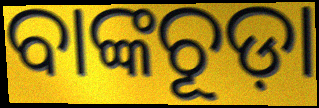
ବାଙ୍କଚୂଡ଼ା